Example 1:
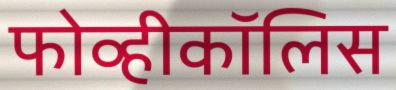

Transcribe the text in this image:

फोव्हीकॉलिस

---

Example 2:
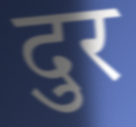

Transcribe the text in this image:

दुर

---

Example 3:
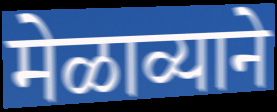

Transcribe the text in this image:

मेळाव्याने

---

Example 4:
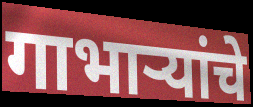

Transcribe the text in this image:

गाभाऱ्यांचे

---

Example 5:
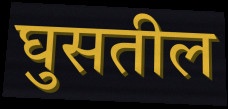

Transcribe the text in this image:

घुसतील